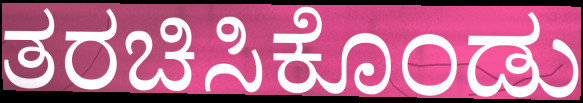
ತರಚಿಸಿಕೊಂಡು